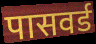
पासवर्ड